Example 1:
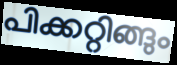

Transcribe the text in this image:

പിക്കറ്റിങ്ങും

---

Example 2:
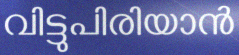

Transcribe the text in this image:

വിട്ടുപിരിയാൻ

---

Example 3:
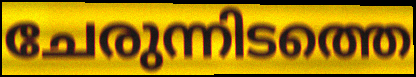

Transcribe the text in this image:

ചേരുന്നിടത്തെ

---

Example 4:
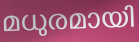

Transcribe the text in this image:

മധുരമായി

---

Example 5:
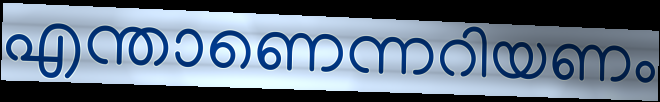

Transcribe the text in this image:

എന്താണെന്നറിയണം